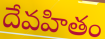
దేవహితం